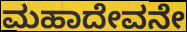
ಮಹಾದೇವನೇ